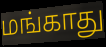
மங்காது